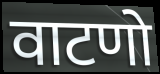
वाटणो